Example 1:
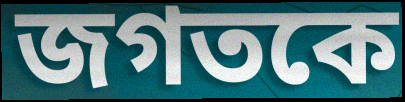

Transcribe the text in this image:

জগতকে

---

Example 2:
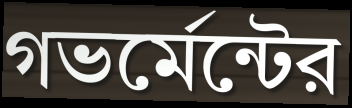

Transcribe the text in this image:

গভর্মেন্টের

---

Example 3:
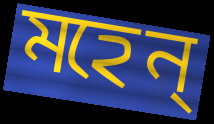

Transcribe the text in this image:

মহেন্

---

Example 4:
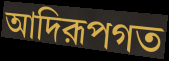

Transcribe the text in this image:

আদিরূপগত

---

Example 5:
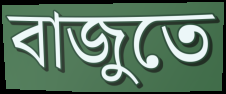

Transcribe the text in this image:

বাজুতে